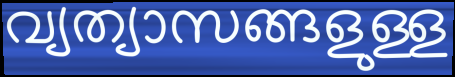
വ്യത്യാസങ്ങളുള്ള